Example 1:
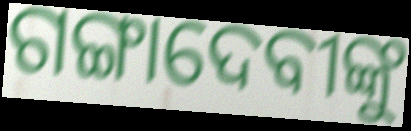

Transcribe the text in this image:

ଗଙ୍ଗାଦେବୀଙ୍କୁ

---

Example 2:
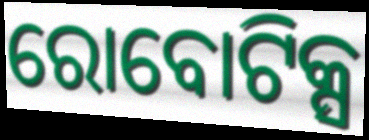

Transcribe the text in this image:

ରୋବୋଟିକ୍ସ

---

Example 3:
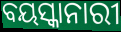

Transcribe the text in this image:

ବୟସ୍କାନାରୀ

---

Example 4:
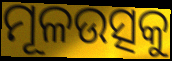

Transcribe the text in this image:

ମୂଳଉତ୍ସକୁ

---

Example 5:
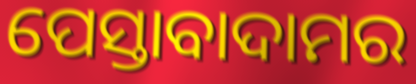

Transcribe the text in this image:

ପେସ୍ତାବାଦାମର